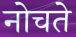
नोचते